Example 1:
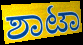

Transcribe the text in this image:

ಶಾಟಾ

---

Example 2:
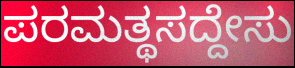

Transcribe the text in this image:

ಪರಮತ್ಥಸದ್ದೇಸು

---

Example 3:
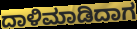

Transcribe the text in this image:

ದಾಳಿಮಾಡಿದಾಗ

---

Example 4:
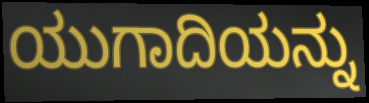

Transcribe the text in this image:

ಯುಗಾದಿಯನ್ನು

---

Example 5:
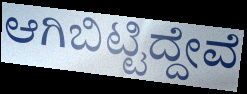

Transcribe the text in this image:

ಆಗಿಬಿಟ್ಟಿದ್ದೇವೆ